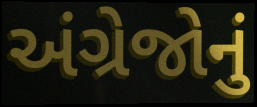
અંગ્રેજોનું